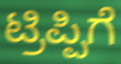
ಟ್ರಿಪ್ಪಿಗೆ